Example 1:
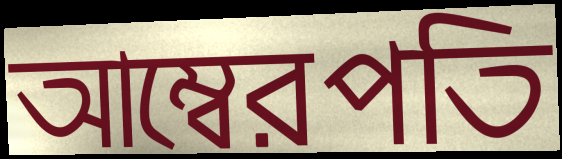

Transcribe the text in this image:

আম্বেরপতি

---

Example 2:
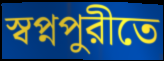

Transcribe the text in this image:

স্বপ্নপুরীতে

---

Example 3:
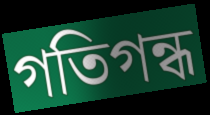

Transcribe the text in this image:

গতিগন্ধ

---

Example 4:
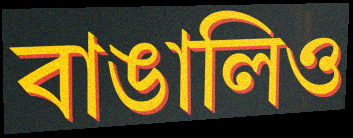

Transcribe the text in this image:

বাঙালিও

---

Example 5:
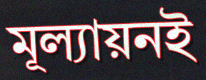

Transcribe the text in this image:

মূল্যায়নই